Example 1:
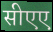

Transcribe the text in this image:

सीएए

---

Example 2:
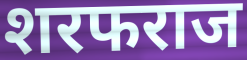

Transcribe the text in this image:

शरफराज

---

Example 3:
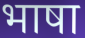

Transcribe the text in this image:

भाषा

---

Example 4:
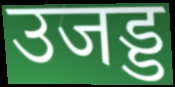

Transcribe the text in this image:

उजड्ड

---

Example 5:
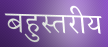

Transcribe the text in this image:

बहुस्तरीय